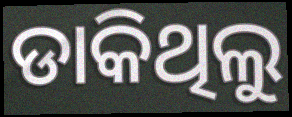
ଡାକିଥିଲୁ